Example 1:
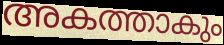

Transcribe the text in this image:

അകത്താകും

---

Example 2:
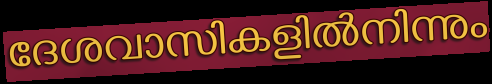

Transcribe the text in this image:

ദേശവാസികളിൽനിന്നും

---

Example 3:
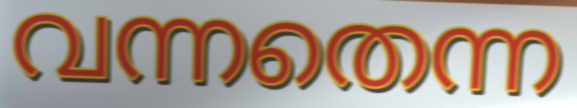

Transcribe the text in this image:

വന്നതെന്ന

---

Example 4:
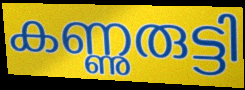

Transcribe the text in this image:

കണ്ണുരുട്ടി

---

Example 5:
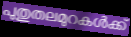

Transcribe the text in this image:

പുതുതലമുറകൾക്ക്